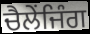
ਚੈਲੇਂਜਿੰਗ